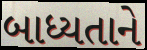
બાધ્યતાને